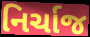
નિર્ચાજ